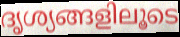
ദൃശ്യങ്ങളിലൂടെ